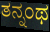
ತನ್ನಂಥ